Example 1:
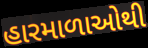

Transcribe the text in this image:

હારમાળાઓથી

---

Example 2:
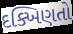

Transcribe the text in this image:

દક્ખિણતો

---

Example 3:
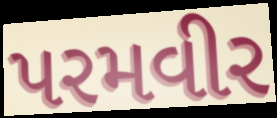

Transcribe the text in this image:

પરમવીર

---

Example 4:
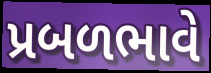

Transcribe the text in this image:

પ્રબળભાવે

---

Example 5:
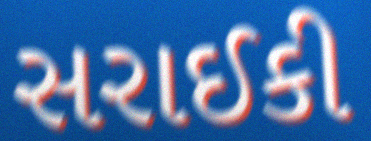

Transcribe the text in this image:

સરાઈકી